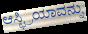
ಆಸ್ಟ್ರಿಯಾವನ್ನು